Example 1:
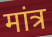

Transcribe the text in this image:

मांत्र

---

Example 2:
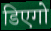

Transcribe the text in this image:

डिएगो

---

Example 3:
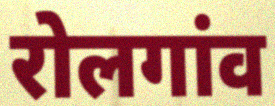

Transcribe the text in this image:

रोलगांव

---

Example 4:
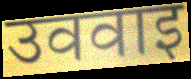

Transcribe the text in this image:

उववाइ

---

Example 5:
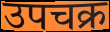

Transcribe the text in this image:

उपचक्र